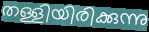
തള്ളിയിരിക്കുന്നു